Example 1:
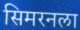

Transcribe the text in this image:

सिमरनला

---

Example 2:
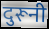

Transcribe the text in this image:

दुरूनी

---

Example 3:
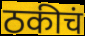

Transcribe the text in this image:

ठकीचं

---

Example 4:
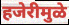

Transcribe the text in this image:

हजेरीमुळे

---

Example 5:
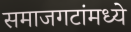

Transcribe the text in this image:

समाजगटांमध्ये